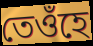
তেওঁহে